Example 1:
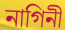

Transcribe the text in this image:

নাগিনী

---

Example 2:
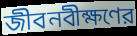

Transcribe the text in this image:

জীবনবীক্ষণের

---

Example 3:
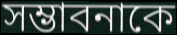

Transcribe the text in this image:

সম্ভাবনাকে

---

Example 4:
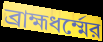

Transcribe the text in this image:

ব্রাহ্মধর্ম্মের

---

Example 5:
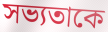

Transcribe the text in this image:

সভ্যতাকে